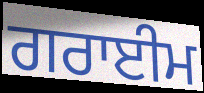
ਗਰਾਈਮ